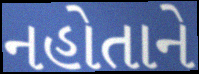
નહોતાને